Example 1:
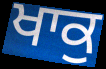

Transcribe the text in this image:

ਖਾਕੁ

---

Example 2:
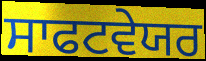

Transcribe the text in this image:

ਸਾਫਟਵੇਯਰ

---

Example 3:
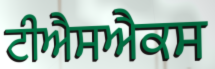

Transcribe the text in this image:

ਟੀਐਸਐਕਸ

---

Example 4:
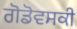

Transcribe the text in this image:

ਗੋਡੋਵਸਕੀ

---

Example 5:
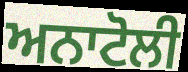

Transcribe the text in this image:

ਅਨਾਟੋਲੀ